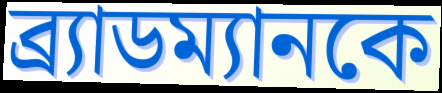
ব্র্যাডম্যানকে